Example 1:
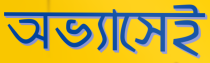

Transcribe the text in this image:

অভ্যাসেই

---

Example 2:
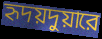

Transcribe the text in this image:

হৃদয়দুয়ারে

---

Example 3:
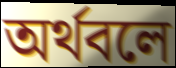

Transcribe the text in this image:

অর্থবলে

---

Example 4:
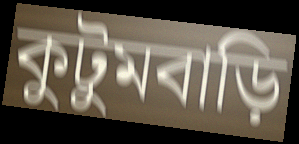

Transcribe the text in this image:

কুটুমবাড়ি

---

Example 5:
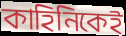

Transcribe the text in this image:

কাহিনিকেই